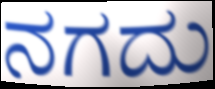
ನಗದು